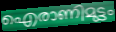
ഐരാണിമുട്ടം